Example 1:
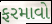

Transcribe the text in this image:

ફરમાવો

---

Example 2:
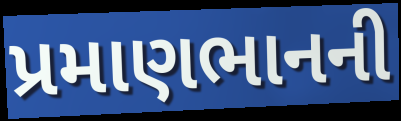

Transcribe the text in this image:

પ્રમાણભાનની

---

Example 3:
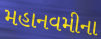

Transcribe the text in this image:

મહાનવમીના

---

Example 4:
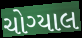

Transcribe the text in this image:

ચોગ્યાલ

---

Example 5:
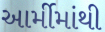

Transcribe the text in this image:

આર્મીમાંથી